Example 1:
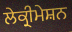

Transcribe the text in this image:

ਲੇਕ੍ਰੀਮੇਸ਼ਨ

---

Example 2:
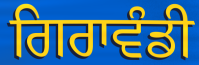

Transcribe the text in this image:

ਗਿਰਾਵੰਡੀ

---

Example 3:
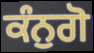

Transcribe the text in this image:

ਕੰਨੁਗੋ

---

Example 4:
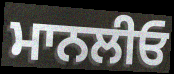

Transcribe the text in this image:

ਮਾਨਲੀਓ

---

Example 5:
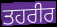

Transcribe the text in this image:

ਤਹਰੀਰ